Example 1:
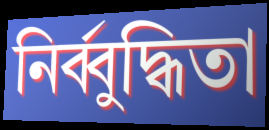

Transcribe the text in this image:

নির্ব্বুদ্ধিতা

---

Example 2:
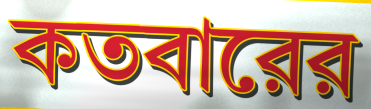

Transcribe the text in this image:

কতবারের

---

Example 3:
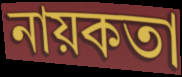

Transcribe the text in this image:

নায়কতা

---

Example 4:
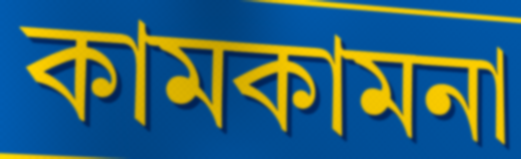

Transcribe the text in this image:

কামকামনা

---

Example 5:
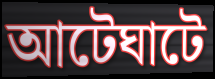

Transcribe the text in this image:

আটেঘাটে